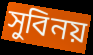
সুবিনয়